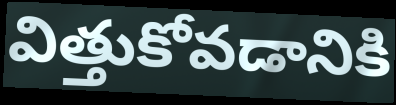
విత్తుకోవడానికి